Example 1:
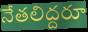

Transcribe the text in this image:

నేతలిద్దరూ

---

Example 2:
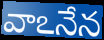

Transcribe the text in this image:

వాఽనేన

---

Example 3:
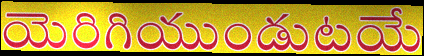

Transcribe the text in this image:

యెరిగియుండుటయే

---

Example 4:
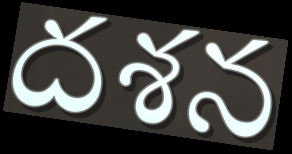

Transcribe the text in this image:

దశన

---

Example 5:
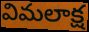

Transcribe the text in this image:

విమలాక్ష